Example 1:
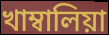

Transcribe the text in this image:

খাম্বালিয়া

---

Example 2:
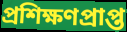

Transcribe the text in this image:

প্ৰশিক্ষণপ্ৰাপ্ত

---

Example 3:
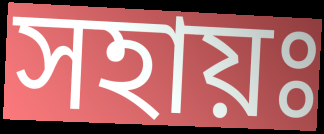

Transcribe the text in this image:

সহায়ঃ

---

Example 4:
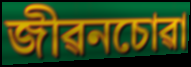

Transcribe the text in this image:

জীৱনচোৱা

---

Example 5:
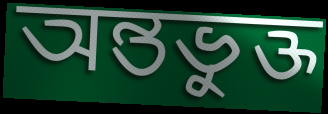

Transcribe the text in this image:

অন্তভুক্ত